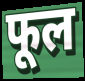
फूल